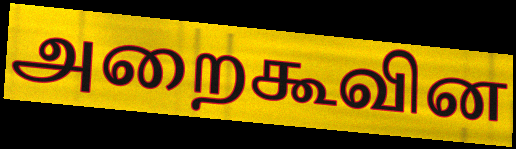
அறைகூவின